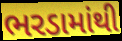
ભરડામાંથી